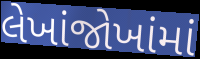
લેખાંજોખાંમાં